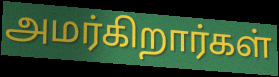
அமர்கிறார்கள்